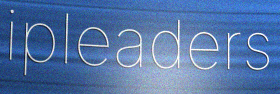
ipleaders